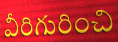
వీరిగురించి